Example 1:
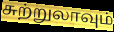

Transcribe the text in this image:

சுற்றுலாவும்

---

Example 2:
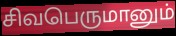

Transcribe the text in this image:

சிவபெருமானும்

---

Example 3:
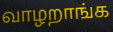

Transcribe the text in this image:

வாழறாங்க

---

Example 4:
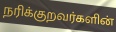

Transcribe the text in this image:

நரிக்குறவர்களின்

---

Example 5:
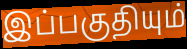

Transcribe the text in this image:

இப்பகுதியும்